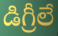
డిగ్రీలే